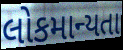
લોકમાન્યતા